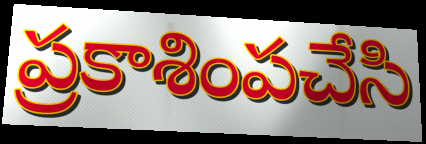
ప్రకాశింపచేసి